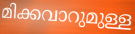
മിക്കവാറുമുള്ള